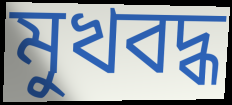
মুখবদ্ধ